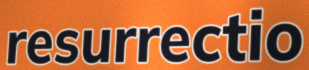
resurrectio